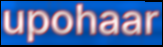
upohaar